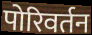
पोरिवर्तन